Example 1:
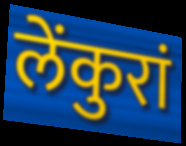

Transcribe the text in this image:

लेंकुरां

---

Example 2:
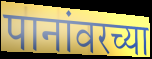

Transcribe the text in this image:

पानांवरच्या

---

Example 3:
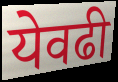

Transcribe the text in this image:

येवढी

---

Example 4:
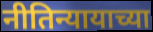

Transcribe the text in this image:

नीतिन्यायाच्या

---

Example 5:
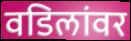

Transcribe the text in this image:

वडिलांवर